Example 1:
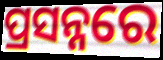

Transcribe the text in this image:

ପ୍ରସନ୍ନରେ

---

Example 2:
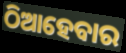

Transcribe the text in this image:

ଠିଆହେବାର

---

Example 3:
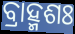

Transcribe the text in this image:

ବ୍ରାହ୍ମଶଃ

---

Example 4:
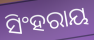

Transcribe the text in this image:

ସିଂହରାୟ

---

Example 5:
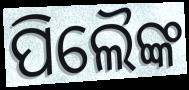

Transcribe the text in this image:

ପିଲୈଙ୍କ